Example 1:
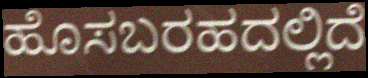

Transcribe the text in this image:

ಹೊಸಬರಹದಲ್ಲಿದೆ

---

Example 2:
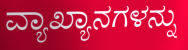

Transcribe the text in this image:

ವ್ಯಾಖ್ಯಾನಗಳನ್ನು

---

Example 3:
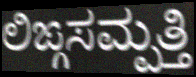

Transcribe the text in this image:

ಲಿಙ್ಗಸಮ್ಪತ್ತಿ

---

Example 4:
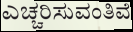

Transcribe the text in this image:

ಎಚ್ಚರಿಸುವಂತಿವೆ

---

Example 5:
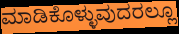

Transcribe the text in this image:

ಮಾಡಿಕೊಳ್ಳುವುದರಲ್ಲೂ